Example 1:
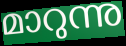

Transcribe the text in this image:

മാറുന്നു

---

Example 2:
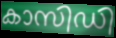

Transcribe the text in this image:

കാസിഡി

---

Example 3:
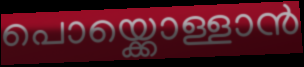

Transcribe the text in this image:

പൊയ്ക്കൊള്ളാൻ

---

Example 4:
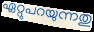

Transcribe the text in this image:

ഏറ്റുപറയുന്നതു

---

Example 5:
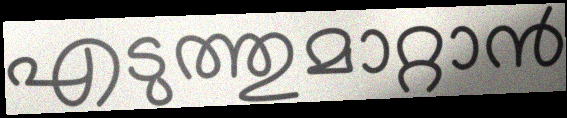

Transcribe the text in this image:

എടുത്തുമാറ്റാൻ